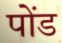
पोंड